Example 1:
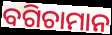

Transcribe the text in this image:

ବଗିଚାମାନ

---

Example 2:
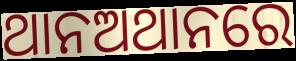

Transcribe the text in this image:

ଥାନଅଥାନରେ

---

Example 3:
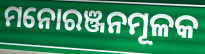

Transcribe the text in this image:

ମନୋରଞ୍ଜନମୂଳକ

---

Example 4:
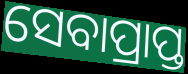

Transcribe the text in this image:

ସେବାପ୍ରାପ୍ତ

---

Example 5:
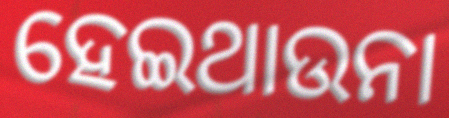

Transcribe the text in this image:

ହେଇଥାଉନା